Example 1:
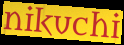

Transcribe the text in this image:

nikuchi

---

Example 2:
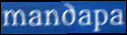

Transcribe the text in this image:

mandapa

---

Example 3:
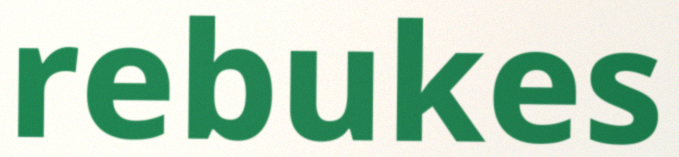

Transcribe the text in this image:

rebukes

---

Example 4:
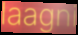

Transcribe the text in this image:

laagni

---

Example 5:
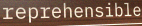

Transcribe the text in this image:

reprehensible